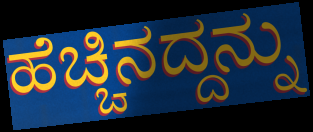
ಹೆಚ್ಚಿನದ್ದನ್ನು